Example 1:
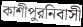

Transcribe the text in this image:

কাশীপুরনিবাসী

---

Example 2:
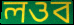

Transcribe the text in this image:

লওব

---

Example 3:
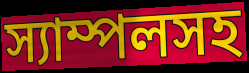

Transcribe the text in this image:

স্যাম্পলসহ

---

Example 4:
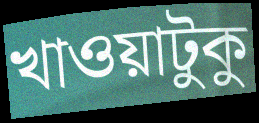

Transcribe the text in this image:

খাওয়াটুকু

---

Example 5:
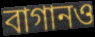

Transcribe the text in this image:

বাগানও